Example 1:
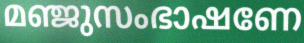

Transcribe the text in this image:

മഞ്ജുസംഭാഷണേ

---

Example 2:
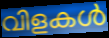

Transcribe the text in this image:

വിളകൾ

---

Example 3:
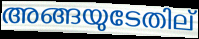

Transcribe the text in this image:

അങ്ങയുടേതില്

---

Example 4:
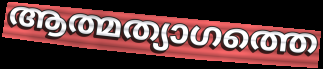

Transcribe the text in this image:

ആത്മത്യാഗത്തെ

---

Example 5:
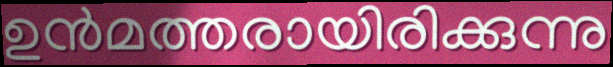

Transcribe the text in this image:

ഉൻമത്തരായിരിക്കുന്നു